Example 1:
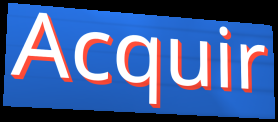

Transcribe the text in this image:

Acquir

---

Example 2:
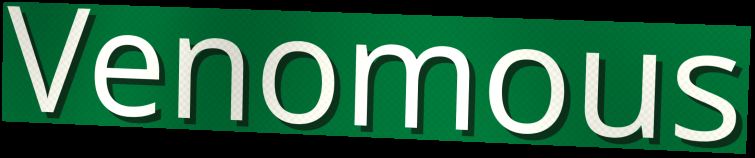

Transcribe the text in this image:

Venomous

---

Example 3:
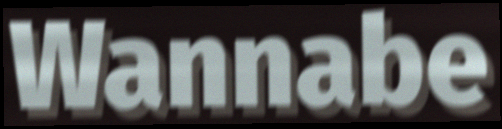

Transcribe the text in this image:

Wannabe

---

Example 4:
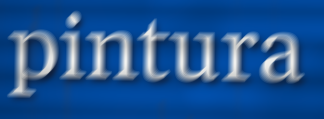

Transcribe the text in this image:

pintura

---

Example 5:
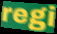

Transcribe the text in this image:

regi